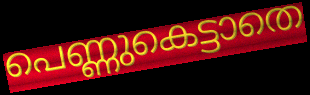
പെണ്ണുകെട്ടാതെ